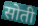
सोती